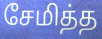
சேமித்த